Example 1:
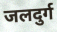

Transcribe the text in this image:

जलदुर्ग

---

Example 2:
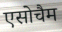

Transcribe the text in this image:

एसोचैम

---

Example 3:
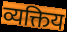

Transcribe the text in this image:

व्यक्तिय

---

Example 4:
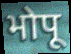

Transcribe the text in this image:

भोपू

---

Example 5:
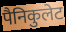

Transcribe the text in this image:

पैनिकुलेट